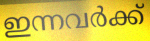
ഇന്നവർക്ക്